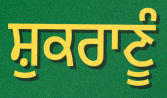
ਸ਼ੁਕਰਾਣੂੰ